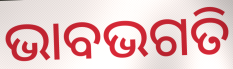
ଭାବଭଗତି